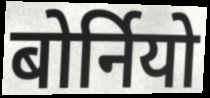
बोर्नियो